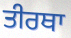
ਤੀਰਥਾ